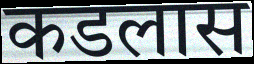
कडलास